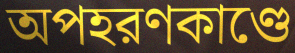
অপহরণকাণ্ডে